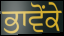
ਭਾਵੋਂਕੇ